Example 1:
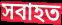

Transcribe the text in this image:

সবাহত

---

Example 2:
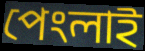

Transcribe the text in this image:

পেংলাই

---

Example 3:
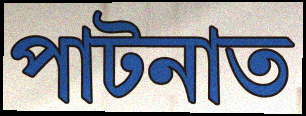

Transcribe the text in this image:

পাটনাত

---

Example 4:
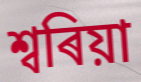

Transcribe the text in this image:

শ্বৰিয়া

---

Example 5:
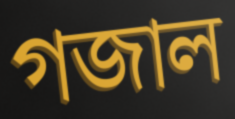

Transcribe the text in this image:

গজাল